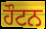
ਹੌਟਨ